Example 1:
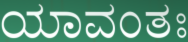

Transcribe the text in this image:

ಯಾವಂತಃ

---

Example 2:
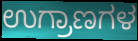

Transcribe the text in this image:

ಉಗ್ರಾಣಗಳ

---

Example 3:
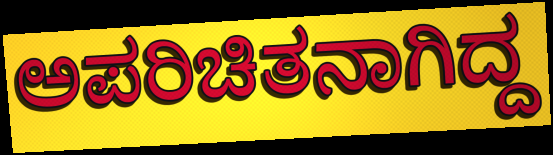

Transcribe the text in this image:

ಅಪರಿಚಿತನಾಗಿದ್ದ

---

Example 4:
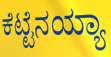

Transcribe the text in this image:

ಕೆಟ್ಟೆನಯ್ಯಾ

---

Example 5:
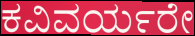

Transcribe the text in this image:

ಕವಿವರ್ಯರೇ